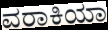
ವರಾಕಿಯಾ